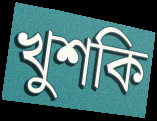
খুশকি